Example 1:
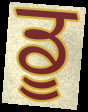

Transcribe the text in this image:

ਡੂ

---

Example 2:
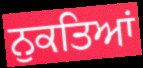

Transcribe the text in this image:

ਨੁਕਤਿਆਂ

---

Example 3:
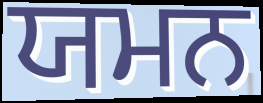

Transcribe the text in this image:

ਯਮਨ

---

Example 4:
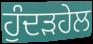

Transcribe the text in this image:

ਹੁੰਦੜਹੇਲ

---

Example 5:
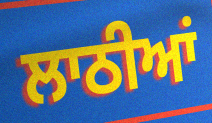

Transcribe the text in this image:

ਲਾਠੀਆਂ